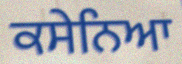
ਕਸੇਨਿਆ